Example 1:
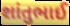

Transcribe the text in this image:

શાંતુભાઈ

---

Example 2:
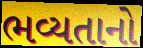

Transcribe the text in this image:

ભવ્યતાનો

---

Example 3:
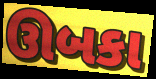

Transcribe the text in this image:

ઊબકા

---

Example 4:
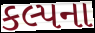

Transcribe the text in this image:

કલ્પના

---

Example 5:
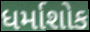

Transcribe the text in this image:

ધર્માશોક